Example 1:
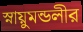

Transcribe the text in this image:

স্নায়ুমন্ডলীর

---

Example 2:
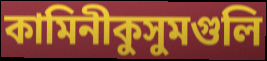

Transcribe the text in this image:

কামিনীকুসুমগুলি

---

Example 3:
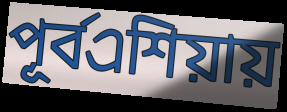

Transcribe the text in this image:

পূর্বএশিয়ায়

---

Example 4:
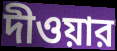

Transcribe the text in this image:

দীওয়ার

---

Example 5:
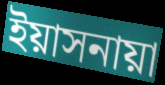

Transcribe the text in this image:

ইয়াসনায়া